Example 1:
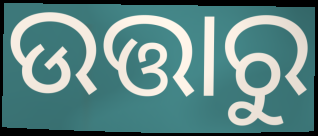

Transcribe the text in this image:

ଉତ୍ତାରୁ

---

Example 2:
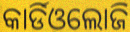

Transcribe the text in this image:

କାର୍ଡିଓଲୋଜି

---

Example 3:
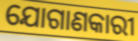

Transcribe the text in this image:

ଯୋଗାଣକାରୀ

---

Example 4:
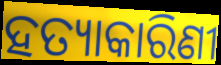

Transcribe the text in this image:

ହତ୍ୟାକାରିଣୀ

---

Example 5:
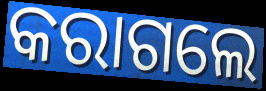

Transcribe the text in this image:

କରାଗଲେ